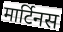
मार्टिनस